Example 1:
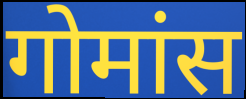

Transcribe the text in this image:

गोमांस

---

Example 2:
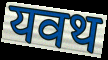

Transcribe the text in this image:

यवथ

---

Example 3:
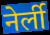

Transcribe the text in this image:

नेर्ली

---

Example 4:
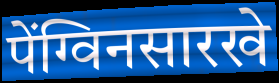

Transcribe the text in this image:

पेंग्विनसारखे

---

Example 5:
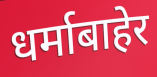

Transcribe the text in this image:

धर्माबाहेर